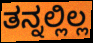
ತನ್ನಲ್ಲಿಲ್ಲ